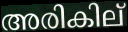
അരികില്